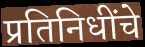
प्रतिनिधींचे